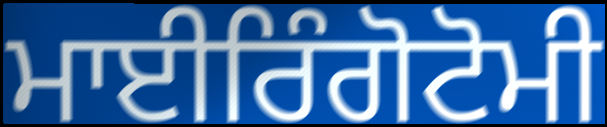
ਮਾਈਰਿੰਗੋਟੋਮੀ